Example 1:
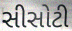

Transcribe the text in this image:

સીસોટી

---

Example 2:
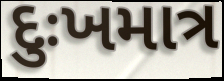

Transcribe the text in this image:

દુઃખમાત્ર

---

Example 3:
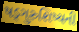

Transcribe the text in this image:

ષડ્ગુરુશિષ્યની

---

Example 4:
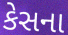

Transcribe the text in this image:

કેસના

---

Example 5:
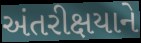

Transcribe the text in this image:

અંતરીક્ષયાને